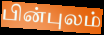
பின்புலம்